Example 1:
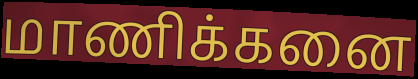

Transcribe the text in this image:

மாணிக்கனை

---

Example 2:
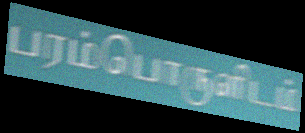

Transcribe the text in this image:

பரம்பொருளிடம்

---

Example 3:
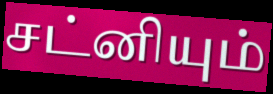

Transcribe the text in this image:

சட்னியும்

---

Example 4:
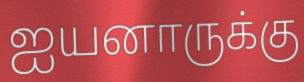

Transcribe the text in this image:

ஐயனாருக்கு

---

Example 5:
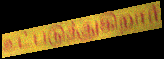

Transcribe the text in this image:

உட்படுத்துகிறார்